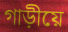
গাড়ীয়ে